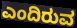
ಎಂದಿರುವ